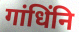
गांधिंनि